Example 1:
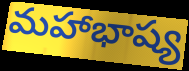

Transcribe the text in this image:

మహాభాష్య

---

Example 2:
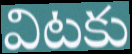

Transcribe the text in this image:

విటకు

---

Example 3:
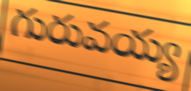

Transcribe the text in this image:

గురువయ్య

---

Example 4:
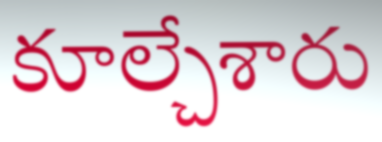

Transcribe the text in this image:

కూల్చేశారు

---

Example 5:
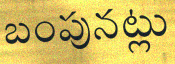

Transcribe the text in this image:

బంపునట్లు